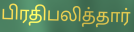
பிரதிபலித்தார்